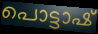
പൊട്ടാഷ്